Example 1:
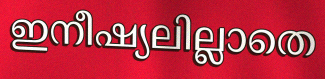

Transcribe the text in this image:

ഇനീഷ്യലില്ലാതെ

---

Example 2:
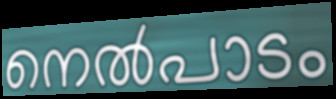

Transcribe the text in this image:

നെൽപാടം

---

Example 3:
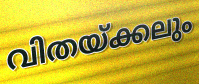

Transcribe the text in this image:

വിതയ്ക്കലും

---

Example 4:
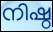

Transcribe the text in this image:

നിഷ്ഠ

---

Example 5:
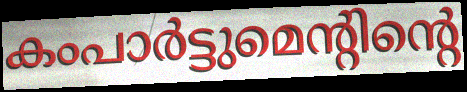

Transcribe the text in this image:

കംപാർട്ടുമെന്റിന്റെ